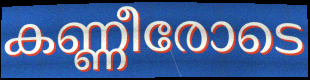
കണ്ണീരോടെ